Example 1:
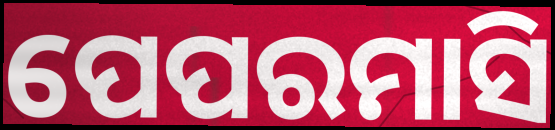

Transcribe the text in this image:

ପେପରମାସି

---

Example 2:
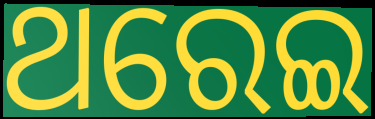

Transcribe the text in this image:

ଥରେଇ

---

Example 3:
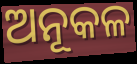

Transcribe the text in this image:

ଅନୂକଳ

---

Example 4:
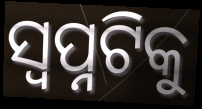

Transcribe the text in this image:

ସ୍ୱପ୍ନଟିକୁ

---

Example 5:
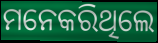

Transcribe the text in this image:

ମନେକରିଥିଲେ